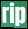
rip